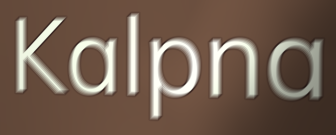
Kalpna